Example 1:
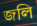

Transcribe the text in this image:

জলি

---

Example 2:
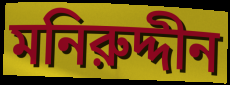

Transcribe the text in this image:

মনিরুদ্দীন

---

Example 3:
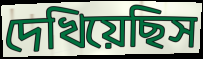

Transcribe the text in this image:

দেখিয়েছিস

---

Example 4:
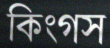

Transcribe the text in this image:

কিংগস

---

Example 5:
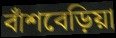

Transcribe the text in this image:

বাঁশবেড়িয়া